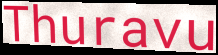
Thuravu